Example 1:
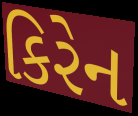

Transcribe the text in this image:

કિરેન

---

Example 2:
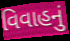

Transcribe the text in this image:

વિવાહનું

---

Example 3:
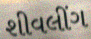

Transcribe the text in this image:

શીવલીંગ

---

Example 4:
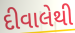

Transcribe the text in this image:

દીવાલેથી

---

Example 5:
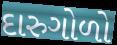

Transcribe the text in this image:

દારુગોળો